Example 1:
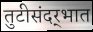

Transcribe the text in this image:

तुटीसंदर्भात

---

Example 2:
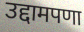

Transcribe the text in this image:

उद्दामपणा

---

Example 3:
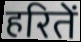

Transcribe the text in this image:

हरितें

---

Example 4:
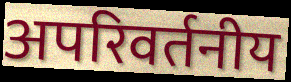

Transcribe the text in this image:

अपरिवर्तनीय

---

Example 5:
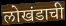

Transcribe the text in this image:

लोखंडाची